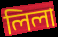
লিলা